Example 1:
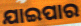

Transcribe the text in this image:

ଯାଇପାର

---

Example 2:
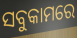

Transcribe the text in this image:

ସବୁକାମରେ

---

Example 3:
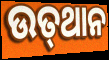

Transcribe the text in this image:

ଉତ୍‍ଥାନ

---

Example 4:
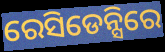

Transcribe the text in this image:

ରେସିଡେନ୍ସିରେ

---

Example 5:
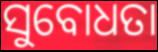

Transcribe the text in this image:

ସୁବୋଧତା